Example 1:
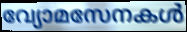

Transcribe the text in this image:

വ്യോമസേനകൾ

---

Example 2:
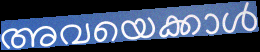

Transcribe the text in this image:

അവയെക്കാൾ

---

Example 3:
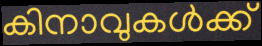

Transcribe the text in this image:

കിനാവുകൾക്ക്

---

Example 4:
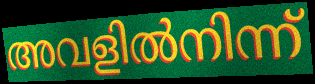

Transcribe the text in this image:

അവളിൽനിന്ന്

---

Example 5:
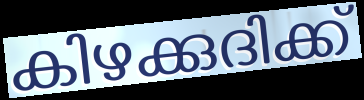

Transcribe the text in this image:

കിഴക്കുദിക്ക്